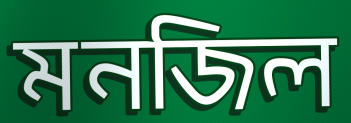
মনজিল